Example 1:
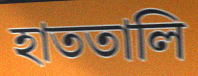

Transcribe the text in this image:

হাততালি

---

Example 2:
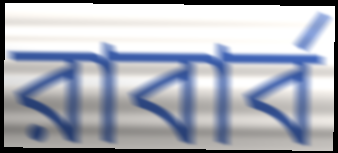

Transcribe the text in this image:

রাবার্ব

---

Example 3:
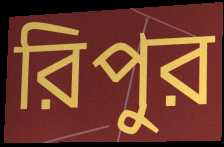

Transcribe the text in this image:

রিপুর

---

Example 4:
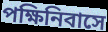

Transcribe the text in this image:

পক্ষিনিবাসে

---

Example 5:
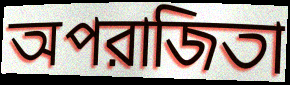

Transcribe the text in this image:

অপরাজিতা